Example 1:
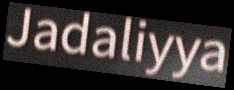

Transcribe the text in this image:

Jadaliyya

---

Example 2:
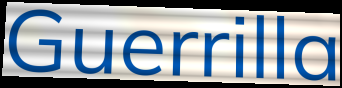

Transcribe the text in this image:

Guerrilla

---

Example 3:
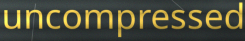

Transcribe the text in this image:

uncompressed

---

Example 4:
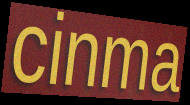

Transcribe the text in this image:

cinma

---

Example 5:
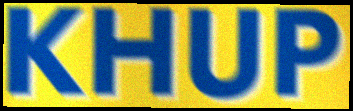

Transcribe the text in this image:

KHUP